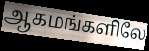
ஆகமங்களிலே